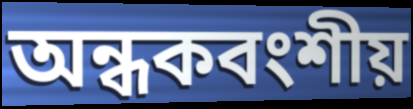
অন্ধকবংশীয়